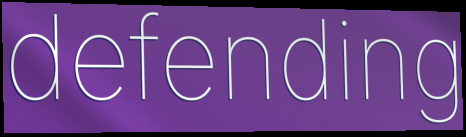
defending